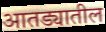
आतड्यातील